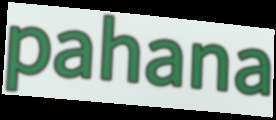
pahana